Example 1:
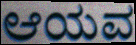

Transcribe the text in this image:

ಆಯವ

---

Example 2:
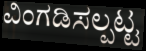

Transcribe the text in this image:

ವಿಂಗಡಿಸಲ್ಪಟ್ಟ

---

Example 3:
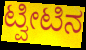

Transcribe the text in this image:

ಟ್ವೀಟಿನ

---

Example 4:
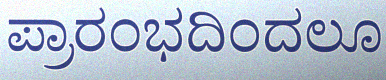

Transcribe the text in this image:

ಪ್ರಾರಂಭದಿಂದಲೂ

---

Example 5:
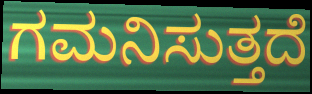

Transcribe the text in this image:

ಗಮನಿಸುತ್ತದೆ